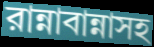
রান্নাবান্নাসহ